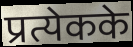
प्रत्येकके